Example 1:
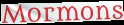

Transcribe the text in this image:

Mormons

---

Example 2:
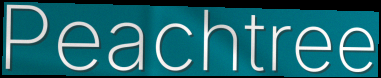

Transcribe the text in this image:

Peachtree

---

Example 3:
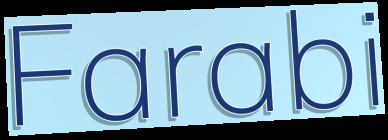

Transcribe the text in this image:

Farabi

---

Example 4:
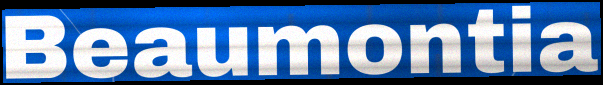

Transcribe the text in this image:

Beaumontia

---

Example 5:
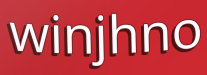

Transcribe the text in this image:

winjhno